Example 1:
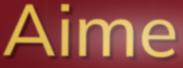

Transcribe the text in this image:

Aime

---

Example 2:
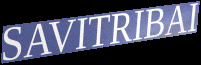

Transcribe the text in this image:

SAVITRIBAI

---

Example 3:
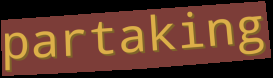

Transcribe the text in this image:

partaking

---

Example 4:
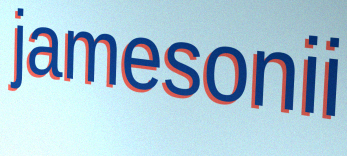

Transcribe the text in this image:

jamesonii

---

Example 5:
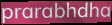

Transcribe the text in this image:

prarabhdha